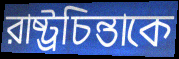
রাষ্ট্রচিন্তাকে